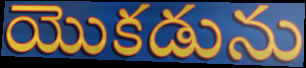
యొకడును